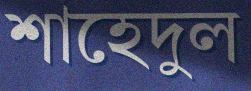
শাহেদুল